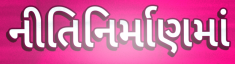
નીતિનિર્માણમાં